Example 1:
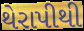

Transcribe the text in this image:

થેરાપીથી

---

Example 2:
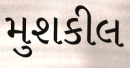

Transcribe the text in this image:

મુશકીલ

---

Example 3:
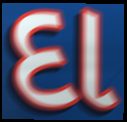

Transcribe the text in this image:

દા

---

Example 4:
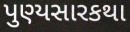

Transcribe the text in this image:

પુણ્યસારકથા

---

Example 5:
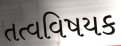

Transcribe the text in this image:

તત્વવિષયક